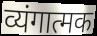
व्यंगात्मक